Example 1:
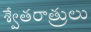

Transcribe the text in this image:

శ్వేతరాత్రులు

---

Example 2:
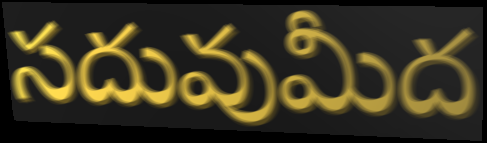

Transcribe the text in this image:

సదువుమీద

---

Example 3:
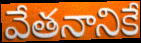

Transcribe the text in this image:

వేతనానికే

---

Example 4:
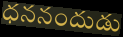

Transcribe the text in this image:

ధననందుడు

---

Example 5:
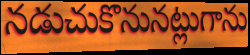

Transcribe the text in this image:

నడుచుకొనునట్లుగాను